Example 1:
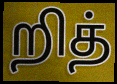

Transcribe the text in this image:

றித்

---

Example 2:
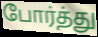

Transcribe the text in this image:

போர்த்து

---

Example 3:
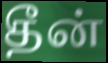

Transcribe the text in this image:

தீன்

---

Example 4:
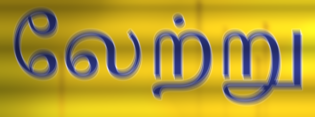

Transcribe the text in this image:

லேற்று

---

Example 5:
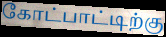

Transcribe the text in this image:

கோட்பாட்டிற்கு